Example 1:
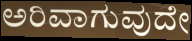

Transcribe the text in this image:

ಅರಿವಾಗುವುದೇ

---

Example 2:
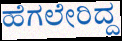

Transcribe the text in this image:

ಹೆಗಲೇರಿದ್ದ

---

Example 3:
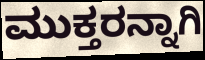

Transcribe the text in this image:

ಮುಕ್ತರನ್ನಾಗಿ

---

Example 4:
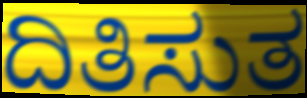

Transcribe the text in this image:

ದಿತಿಸುತ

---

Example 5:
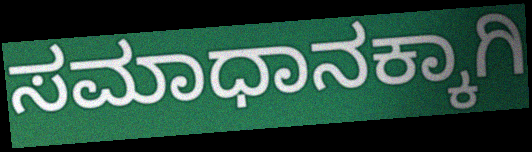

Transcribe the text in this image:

ಸಮಾಧಾನಕ್ಕಾಗಿ